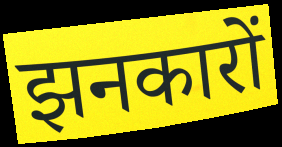
झनकारों